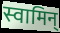
स्वामिन्